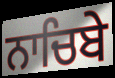
ਨਾਚਿਬੇ